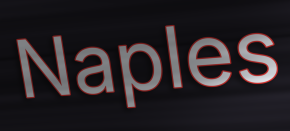
Naples